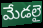
మేడలై